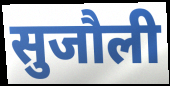
सुजौली